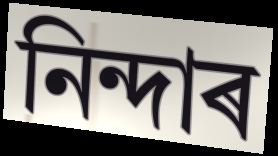
নিন্দাৰ